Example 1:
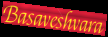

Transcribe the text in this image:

Basaveshvara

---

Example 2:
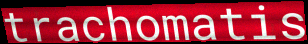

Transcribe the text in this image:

trachomatis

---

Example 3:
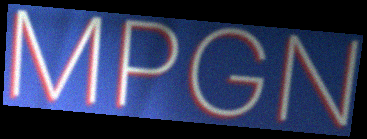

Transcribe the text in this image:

MPGN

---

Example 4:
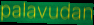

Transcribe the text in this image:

palavudan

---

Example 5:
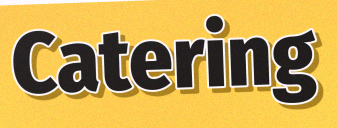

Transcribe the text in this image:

Catering